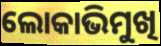
ଲୋକାଭିମୁଖି